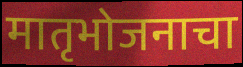
मातृभोजनाचा